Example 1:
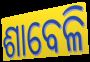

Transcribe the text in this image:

ଶାବେଳି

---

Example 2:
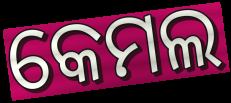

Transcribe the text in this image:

କେମଲ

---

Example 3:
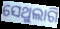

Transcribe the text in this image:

ସେଥୁଲାଗି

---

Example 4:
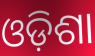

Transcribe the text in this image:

ଓଡ଼ିଶା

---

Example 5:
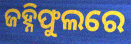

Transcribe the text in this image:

ଜହ୍ନିଫୁଲରେ